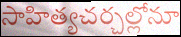
సాహిత్యచర్చల్లోనూ